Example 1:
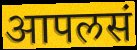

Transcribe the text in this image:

आपलसं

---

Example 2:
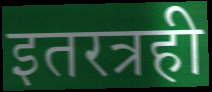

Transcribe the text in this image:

इतरत्रही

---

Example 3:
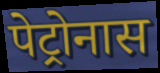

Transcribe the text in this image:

पेट्रोनास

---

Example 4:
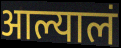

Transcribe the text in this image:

आल्यालं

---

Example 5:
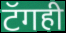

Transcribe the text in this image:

टॅगही